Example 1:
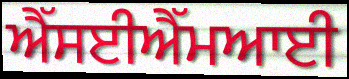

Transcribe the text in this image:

ਐੱਸਈਐੱਮਆਈ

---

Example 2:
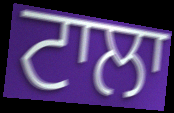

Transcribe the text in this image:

ਟਾਲਾ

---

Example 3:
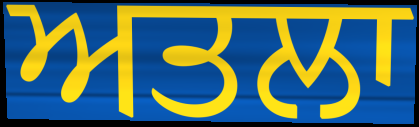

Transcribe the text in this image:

ਅਤਲਾ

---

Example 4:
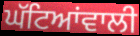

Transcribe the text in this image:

ਘੱਟਿਆਂਵਾਲੀ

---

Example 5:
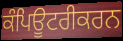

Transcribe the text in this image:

ਕੰਪਿਊਟਰੀਕਰਨ